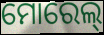
ମୋରେଲ୍